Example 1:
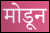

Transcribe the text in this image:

मोडून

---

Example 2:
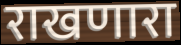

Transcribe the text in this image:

राखणारा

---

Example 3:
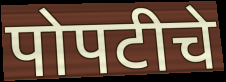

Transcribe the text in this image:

पोपटीचे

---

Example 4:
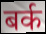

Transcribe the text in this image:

बर्क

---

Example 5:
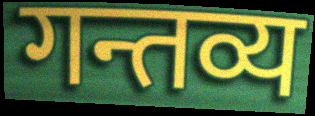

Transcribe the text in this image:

गन्तव्य